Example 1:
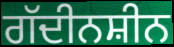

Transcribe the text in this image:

ਗੱਦੀਨਸ਼ੀਨ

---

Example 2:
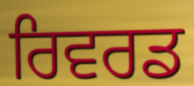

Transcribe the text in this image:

ਰਿਵਰਡ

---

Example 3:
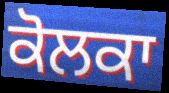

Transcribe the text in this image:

ਕੋਲਕਾ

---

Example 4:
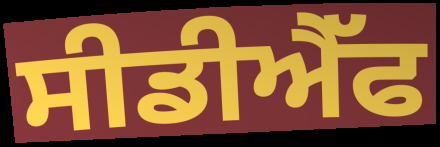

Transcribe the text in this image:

ਸੀਡੀਐੱਫ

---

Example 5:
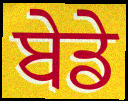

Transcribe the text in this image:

ਬੇਡੇ